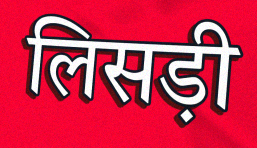
लिसड़ी